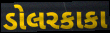
ડોલરકાકા